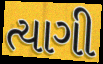
ત્યાગી